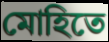
মোহিতে